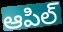
ఆపిల్